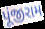
પૂંજીરામ